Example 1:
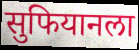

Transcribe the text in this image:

सुफियानला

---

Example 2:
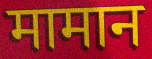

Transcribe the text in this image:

मामान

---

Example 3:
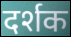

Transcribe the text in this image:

दर्शक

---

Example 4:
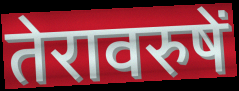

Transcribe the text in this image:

तेरावरुषें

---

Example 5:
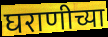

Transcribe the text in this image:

घराणीच्या